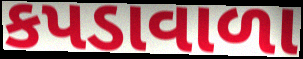
કપડાવાળા